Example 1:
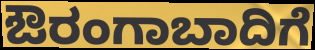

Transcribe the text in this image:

ಔರಂಗಾಬಾದಿಗೆ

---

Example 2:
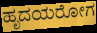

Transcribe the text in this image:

ಹೃದಯರೋಗ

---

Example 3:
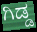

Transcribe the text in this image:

ಗಿಡ್ಡ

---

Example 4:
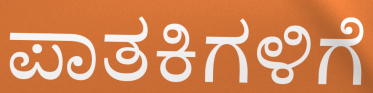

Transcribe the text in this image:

ಪಾತಕಿಗಳಿಗೆ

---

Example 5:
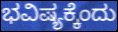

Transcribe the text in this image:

ಭವಿಷ್ಯಕ್ಕೆಂದು